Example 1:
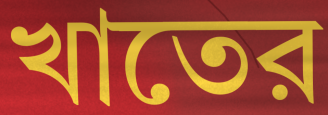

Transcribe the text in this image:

খাতের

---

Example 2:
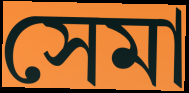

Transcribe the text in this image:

সেমা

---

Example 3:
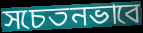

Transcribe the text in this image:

সচেতনভাবে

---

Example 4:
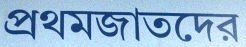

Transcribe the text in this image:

প্রথমজাতদের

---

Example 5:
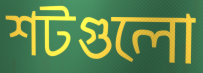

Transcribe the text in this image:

শটগুলো